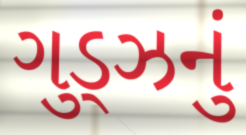
ગુડ્ઝનું